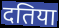
दतिया